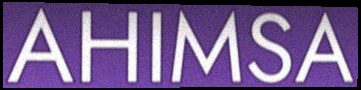
AHIMSA